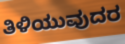
ತಿಳಿಯುವುದರ